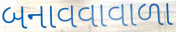
બનાવવાવાળા